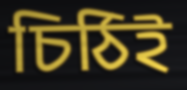
চিঠিই